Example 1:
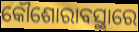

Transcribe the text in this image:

କୌଶୋରାବସ୍ଥାରେ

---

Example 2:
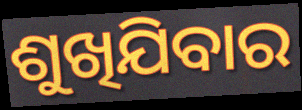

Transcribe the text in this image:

ଶୁଖିଯିବାର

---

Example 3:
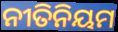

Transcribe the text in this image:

ନୀତିନିୟମ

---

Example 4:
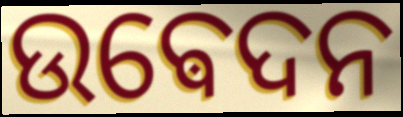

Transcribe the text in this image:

ଉଵେଦନ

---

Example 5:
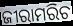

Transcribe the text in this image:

ଜୀରାମରିଚ